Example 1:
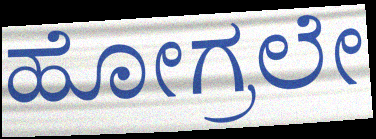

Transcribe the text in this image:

ಹೋಗ್ರಲೇ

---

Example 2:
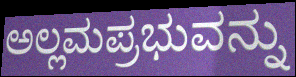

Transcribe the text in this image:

ಅಲ್ಲಮಪ್ರಭುವನ್ನು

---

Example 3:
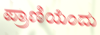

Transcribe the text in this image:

ಪ್ರಾಣಿಯೆಂದು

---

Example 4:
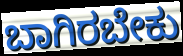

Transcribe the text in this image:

ಬಾಗಿರಬೇಕು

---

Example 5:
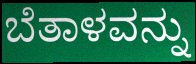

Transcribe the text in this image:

ಬೆತಾಳವನ್ನು